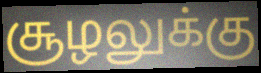
சூழலுக்கு